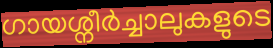
ഗായശ്നീർച്ചാലുകളുടെ